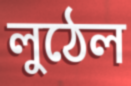
লুঠেল